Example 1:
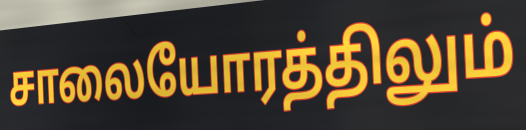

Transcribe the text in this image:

சாலையோரத்திலும்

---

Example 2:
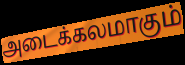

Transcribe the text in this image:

அடைக்கலமாகும்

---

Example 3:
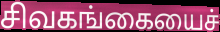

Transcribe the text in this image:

சிவகங்கையைச்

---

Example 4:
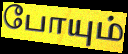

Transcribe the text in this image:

போயும்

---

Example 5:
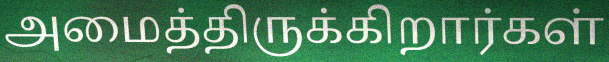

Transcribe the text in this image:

அமைத்திருக்கிறார்கள்